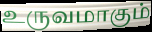
உருவமாகும்